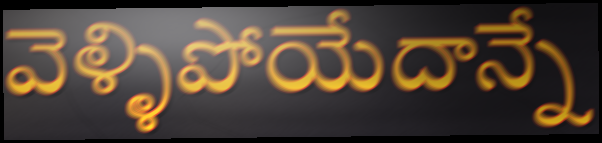
వెళ్ళిపోయేదాన్నే